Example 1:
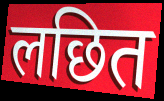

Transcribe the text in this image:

लछित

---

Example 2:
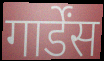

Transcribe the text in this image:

गार्डेंस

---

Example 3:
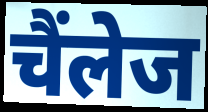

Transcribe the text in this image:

चैंलेज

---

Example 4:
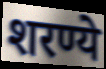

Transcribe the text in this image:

शरण्ये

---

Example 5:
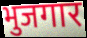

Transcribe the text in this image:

भुजगार